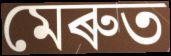
মেৰুত